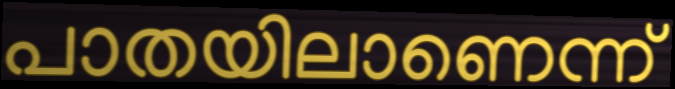
പാതയിലാണെന്ന്